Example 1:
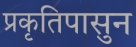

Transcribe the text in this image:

प्रकृतिपासुन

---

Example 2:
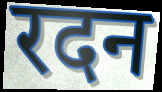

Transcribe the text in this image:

रदन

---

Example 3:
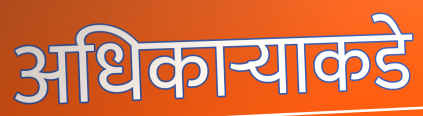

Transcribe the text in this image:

अधिकार्‍याकडे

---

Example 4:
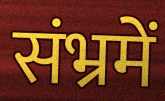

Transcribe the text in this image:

संभ्रमें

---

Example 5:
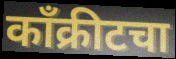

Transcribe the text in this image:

काँक्रीटचा